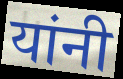
यांनी